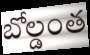
బోల్డంత